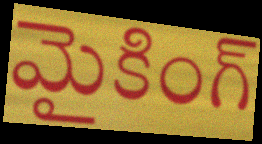
మైకింగ్